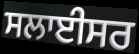
ਸਲਾਈਸਰ